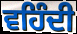
ਵਹਿੰਦੀ